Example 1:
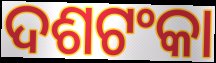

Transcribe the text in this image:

ଦଶଟଂକା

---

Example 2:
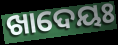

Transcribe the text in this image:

ଖାଦେୟଃ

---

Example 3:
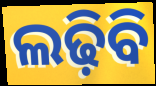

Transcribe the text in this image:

ଲଢ଼ିବି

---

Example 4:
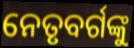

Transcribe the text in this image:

ନେତୃବର୍ଗଙ୍କୁ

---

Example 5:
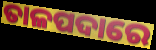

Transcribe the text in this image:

ତାଳପଦାରେ